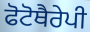
ਫੋਟੋਥੈਰੇਪੀ